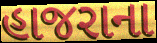
હાજરાના